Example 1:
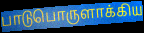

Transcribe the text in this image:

பாடுபொருளாக்கிய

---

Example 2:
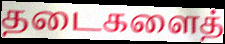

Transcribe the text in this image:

தடைகளைத்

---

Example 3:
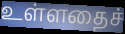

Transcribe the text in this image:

உள்ளதைச்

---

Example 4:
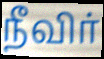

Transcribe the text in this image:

நீவிர்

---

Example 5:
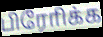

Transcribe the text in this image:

பிரேரிக்க